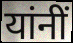
यांनीं